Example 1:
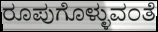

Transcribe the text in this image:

ರೂಪುಗೊಳ್ಳುವಂತೆ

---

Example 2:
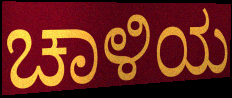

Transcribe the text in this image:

ಚಾಳಿಯ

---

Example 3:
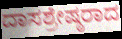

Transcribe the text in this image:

ದಾಸಶ್ರೇಷ್ಠರಾದ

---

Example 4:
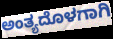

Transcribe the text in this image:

ಅಂತ್ಯದೊಳಗಾಗಿ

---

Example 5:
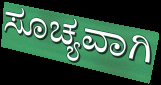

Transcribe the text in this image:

ಸೂಚ್ಯವಾಗಿ